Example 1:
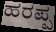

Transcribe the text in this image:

ಹರಪ್ಪ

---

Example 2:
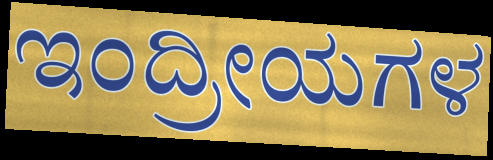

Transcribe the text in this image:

ಇಂದ್ರೀಯಗಳ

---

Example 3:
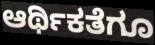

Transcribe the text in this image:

ಆರ್ಥಿಕತೆಗೂ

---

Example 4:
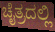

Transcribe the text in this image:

ಚೈತ್ರದಲ್ಲಿ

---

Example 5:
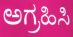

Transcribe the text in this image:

ಅಗ್ರಹಿಸಿ